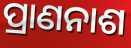
ପ୍ରାଣନାଶ